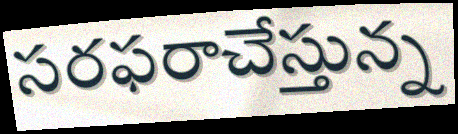
సరఫరాచేస్తున్న